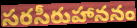
సరసీరుహాననం